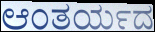
ಆಂತರ್ಯದ